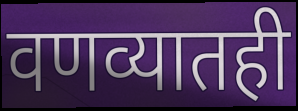
वणव्यातही